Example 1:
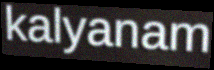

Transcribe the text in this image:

kalyanam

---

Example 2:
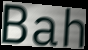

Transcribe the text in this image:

Bah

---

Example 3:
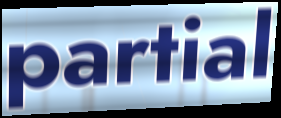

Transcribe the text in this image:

partial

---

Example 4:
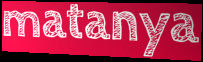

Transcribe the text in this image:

matanya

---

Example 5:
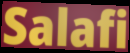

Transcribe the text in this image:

Salafi